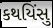
કથયિંસુ